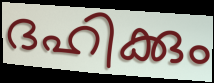
ദഹിക്കും